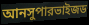
আনসুপারভাইজড